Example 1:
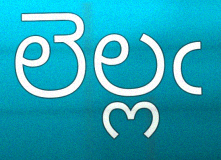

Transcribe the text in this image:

లెల్లఁ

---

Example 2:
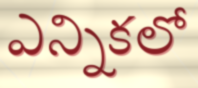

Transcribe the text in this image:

ఎన్నికలో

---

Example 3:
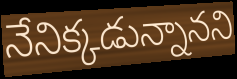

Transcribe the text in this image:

నేనిక్కడున్నానని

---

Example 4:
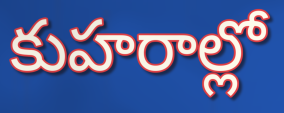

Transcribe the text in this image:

కుహరాల్లో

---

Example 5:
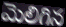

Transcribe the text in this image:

మెలిగిన